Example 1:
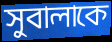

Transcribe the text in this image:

সুবালাকে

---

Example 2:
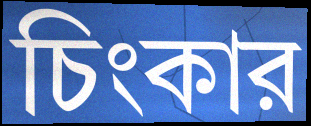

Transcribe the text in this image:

চিংকার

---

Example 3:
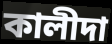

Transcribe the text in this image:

কালীদা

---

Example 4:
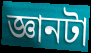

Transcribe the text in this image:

জ্ঞানটা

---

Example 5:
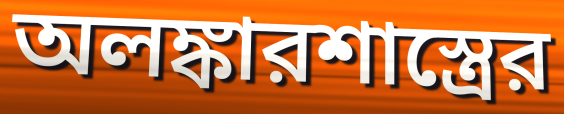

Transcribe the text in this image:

অলঙ্কারশাস্ত্রের